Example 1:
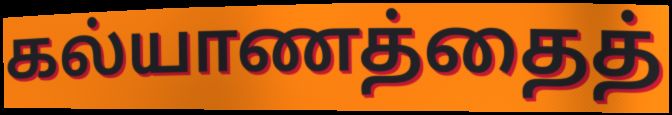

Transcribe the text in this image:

கல்யாணத்தைத்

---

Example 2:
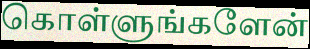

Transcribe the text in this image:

கொள்ளுங்களேன்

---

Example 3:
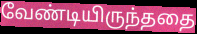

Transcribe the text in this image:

வேண்டியிருந்ததை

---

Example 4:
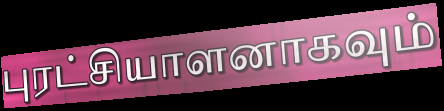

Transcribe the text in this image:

புரட்சியாளனாகவும்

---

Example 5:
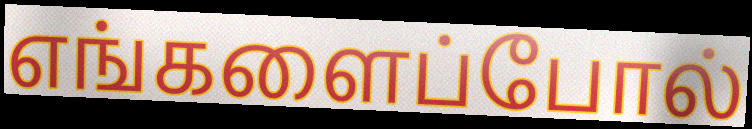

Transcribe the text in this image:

எங்களைப்போல்